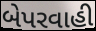
બેપરવાહી